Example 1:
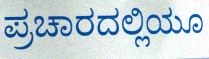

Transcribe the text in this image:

ಪ್ರಚಾರದಲ್ಲಿಯೂ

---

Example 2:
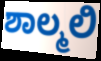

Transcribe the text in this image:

ಶಾಲ್ಮಲಿ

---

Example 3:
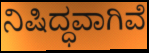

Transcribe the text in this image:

ನಿಷಿದ್ಧವಾಗಿವೆ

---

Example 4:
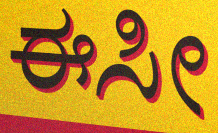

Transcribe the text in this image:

ಈಸೀ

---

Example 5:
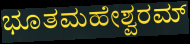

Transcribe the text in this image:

ಭೂತಮಹೇಶ್ವರಮ್